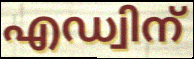
എഡ്വിന്